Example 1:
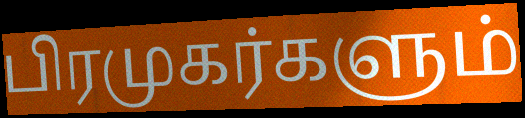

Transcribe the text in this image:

பிரமுகர்களும்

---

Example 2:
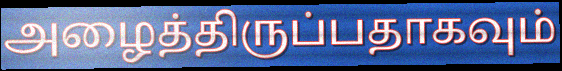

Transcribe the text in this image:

அழைத்திருப்பதாகவும்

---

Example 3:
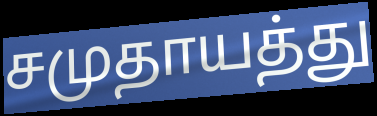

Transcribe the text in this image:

சமுதாயத்து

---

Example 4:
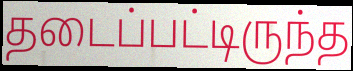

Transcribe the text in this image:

தடைப்பட்டிருந்த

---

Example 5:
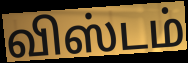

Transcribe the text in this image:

விஸ்டம்